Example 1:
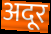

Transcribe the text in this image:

अदूर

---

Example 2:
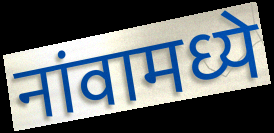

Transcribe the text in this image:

नांवामध्ये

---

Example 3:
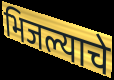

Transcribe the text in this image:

भिजल्याचे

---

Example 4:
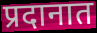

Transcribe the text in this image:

प्रदानात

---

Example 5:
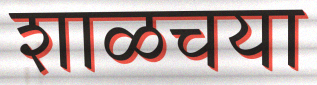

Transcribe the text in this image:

शाळचया